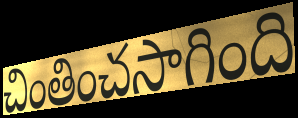
చింతించసాగింది